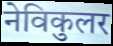
नेविकुलर